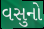
વસુનો